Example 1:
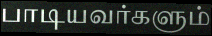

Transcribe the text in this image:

பாடியவர்களும்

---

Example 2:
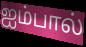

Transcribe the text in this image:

ஐம்பால்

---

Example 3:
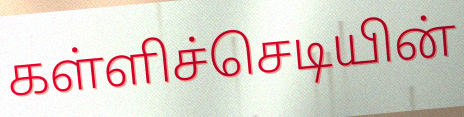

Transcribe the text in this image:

கள்ளிச்செடியின்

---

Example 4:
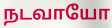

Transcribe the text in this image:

நடவாயோ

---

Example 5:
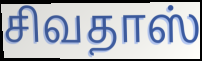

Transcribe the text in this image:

சிவதாஸ்